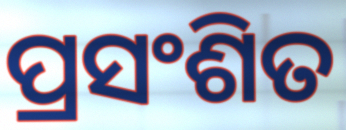
ପ୍ରସଂଶିତ